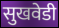
सुखवेडी